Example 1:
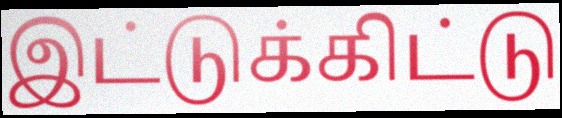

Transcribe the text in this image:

இட்டுக்கிட்டு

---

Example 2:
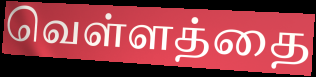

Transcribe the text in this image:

வெள்ளத்தை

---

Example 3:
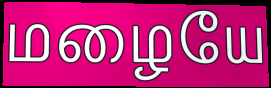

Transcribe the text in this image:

மழையே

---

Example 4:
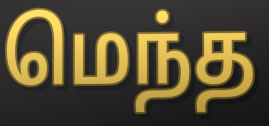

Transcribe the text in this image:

மெந்த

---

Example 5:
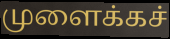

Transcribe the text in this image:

முளைக்கச்